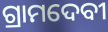
ଗ୍ରାମଦେବୀ